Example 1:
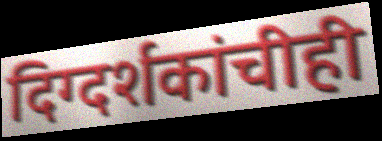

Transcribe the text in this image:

दिग्दर्शकांचीही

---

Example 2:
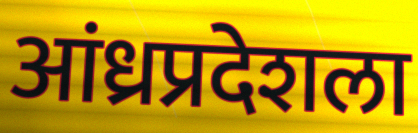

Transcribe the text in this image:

आंध्रप्रदेशला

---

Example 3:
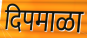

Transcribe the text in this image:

दिपमाळा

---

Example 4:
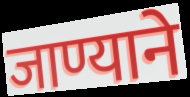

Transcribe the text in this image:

जाण्याने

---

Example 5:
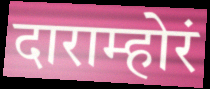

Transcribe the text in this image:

दाराम्होरं